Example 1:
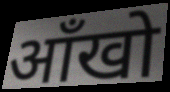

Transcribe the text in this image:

ऑंखो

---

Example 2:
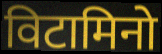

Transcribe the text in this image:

विटामिनो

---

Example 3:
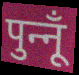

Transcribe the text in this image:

पुन्नूँ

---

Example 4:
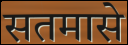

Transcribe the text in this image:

सतमासे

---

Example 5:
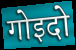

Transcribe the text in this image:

गोइदो